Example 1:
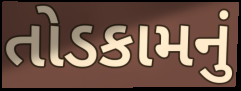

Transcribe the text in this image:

તોડકામનું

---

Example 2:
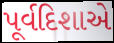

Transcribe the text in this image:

પૂર્વદિશાએ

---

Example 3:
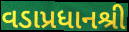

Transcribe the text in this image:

વડાપ્રધાનશ્રી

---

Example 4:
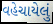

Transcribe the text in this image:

વહેચાયેલું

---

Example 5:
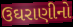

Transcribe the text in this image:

ઉઘરાણીનો